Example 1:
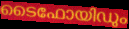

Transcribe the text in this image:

ടൈഫോയിഡും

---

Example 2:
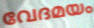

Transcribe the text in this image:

വേദമയം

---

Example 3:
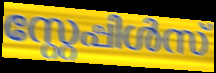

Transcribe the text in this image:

സ്റ്റേപ്പിൾസ്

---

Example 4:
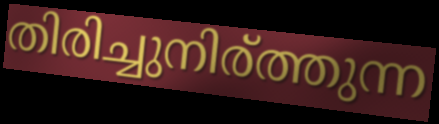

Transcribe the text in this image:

തിരിച്ചുനിര്ത്തുന്ന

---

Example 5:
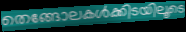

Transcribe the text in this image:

തെങ്ങോലകൾക്കിടയിലൂടെ